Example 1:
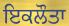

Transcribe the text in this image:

ਇਕਲੌਤਾ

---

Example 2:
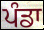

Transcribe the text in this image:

ਪੰਡਾ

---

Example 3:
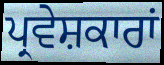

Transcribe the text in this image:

ਪ੍ਰਵੇਸ਼ਕਾਰਾਂ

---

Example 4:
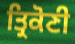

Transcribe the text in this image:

ਤ੍ਰਿਕੋਣੀ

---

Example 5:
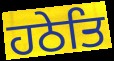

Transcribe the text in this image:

ਹਠੇਤਿ